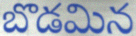
బొడమిన